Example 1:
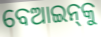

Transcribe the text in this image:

ବେଆଇନ୍‌କୁ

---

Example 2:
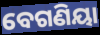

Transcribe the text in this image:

ବେଗଣିୟା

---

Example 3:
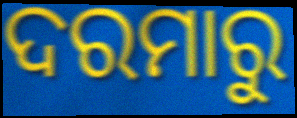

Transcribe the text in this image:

ଦରମାରୁ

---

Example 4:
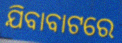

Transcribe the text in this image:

ଯିବାବାଟରେ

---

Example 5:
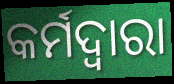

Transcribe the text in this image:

କର୍ମଦ୍ୱାରା